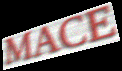
MACE